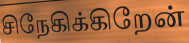
சிநேகிக்கிறேன்